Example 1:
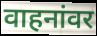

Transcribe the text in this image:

वाहनांवर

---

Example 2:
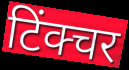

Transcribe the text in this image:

टिंक्चर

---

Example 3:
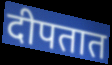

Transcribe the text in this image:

दीपतात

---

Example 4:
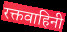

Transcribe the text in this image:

रक्तवाहिनी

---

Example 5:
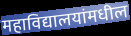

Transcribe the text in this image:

महाविद्यालयांमधील